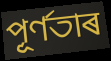
পূৰ্ণতাৰ